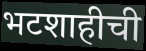
भटशाहीची